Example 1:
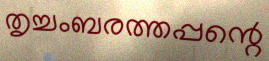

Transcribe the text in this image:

തൃച്ചംബരത്തപ്പന്റെ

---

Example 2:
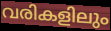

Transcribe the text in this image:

വരികളിലും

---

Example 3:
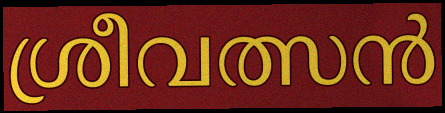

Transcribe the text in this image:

ശ്രീവത്സൻ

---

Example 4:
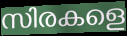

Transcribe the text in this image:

സിരകളെ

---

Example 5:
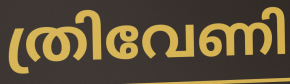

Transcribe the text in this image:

ത്രിവേണി